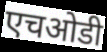
एचओडी